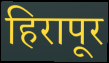
हिरापूर